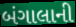
બંગાલાની